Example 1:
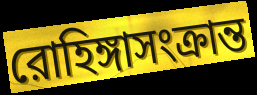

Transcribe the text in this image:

রোহিঙ্গাসংক্রান্ত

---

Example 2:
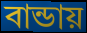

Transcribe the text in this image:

বান্ডায়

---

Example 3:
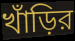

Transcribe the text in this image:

খাঁড়ির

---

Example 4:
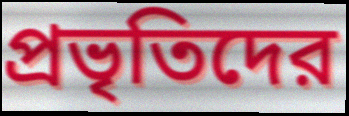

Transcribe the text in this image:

প্রভৃতিদের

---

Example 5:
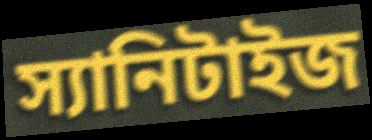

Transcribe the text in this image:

স্যানিটাইজ